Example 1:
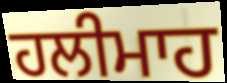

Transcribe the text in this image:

ਹਲੀਮਾਹ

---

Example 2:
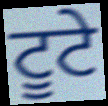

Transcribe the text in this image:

ਟੂਟੇ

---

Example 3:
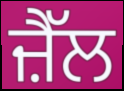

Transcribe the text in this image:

ਜ਼ੈੱਲ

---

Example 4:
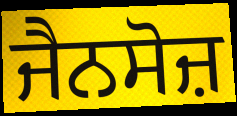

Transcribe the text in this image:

ਜੈਨਸੋਜ਼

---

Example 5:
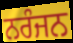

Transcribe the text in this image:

ਨਰੰਜਨ